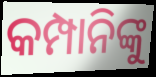
କମ୍ପାନିଙ୍କୁ